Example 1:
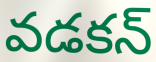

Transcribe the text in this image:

వడకన్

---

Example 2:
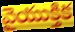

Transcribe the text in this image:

వైయుక్తిక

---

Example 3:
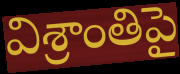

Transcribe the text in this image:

విశ్రాంతిపై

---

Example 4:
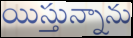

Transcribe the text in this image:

యిస్తున్నాను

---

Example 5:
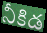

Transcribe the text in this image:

నీకిడ